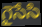
గైసేసి